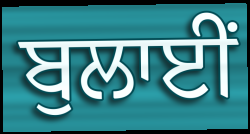
ਬੁਲਾਈਂ